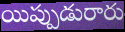
యిప్పుడురారు